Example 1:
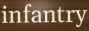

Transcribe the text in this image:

infantry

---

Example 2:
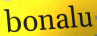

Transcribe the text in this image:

bonalu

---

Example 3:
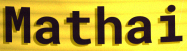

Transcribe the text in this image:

Mathai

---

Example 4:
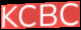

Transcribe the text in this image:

KCBC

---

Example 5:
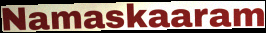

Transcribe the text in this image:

Namaskaaram